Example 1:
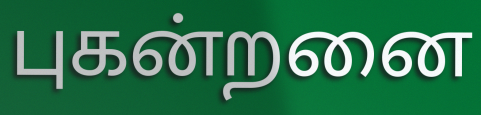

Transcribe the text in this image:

புகன்றனை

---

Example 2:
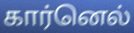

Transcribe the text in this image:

கார்னெல்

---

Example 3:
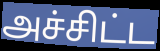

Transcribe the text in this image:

அச்சிட்ட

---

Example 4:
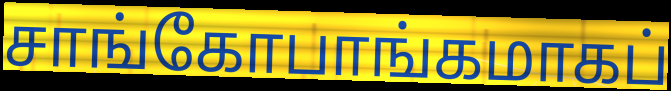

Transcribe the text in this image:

சாங்கோபாங்கமாகப்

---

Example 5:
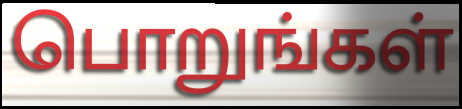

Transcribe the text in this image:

பொறுங்கள்